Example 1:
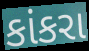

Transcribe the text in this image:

કાંકરા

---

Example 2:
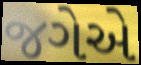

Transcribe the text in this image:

જગેએ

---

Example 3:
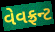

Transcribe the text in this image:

વેવફ્રન્ટ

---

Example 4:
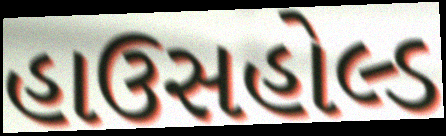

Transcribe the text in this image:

હાઉસહોલ્ડ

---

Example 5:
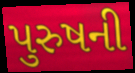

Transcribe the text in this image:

પુરુષની